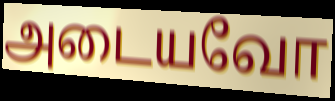
அடையவோ